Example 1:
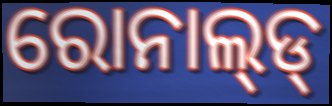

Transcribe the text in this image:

ରୋନାଲ୍‌ଡ୍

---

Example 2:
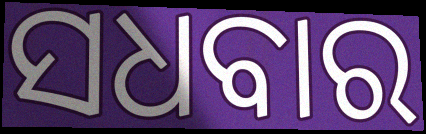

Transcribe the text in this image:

ସଧବାର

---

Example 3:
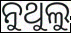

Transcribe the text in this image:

ନୁଥୁଲୁ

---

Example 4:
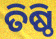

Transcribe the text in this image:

ତିଷ୍ଠି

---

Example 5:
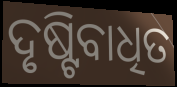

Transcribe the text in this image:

ଦୃଷ୍ଟିବାଧିତ